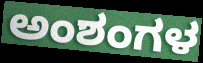
ಅಂಶಂಗಳ